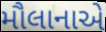
મૌલાનાએ